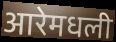
आरेमधली